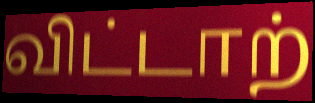
விட்டாற்